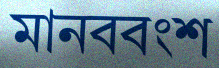
মানববংশ